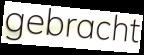
gebracht